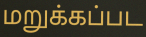
மறுக்கப்பட